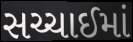
સચ્ચાઈમાં